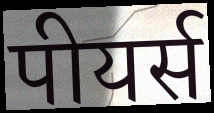
पीयर्स